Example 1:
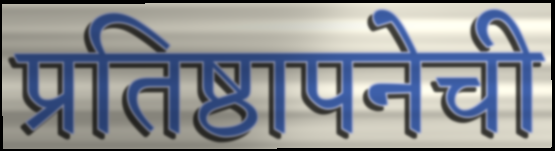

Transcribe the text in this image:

प्रतिष्ठापनेची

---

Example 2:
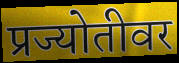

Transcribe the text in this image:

प्रज्योतीवर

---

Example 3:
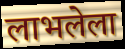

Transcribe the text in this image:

लाभलेला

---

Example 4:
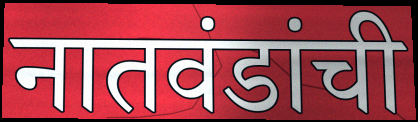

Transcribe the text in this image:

नातवंडांची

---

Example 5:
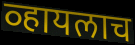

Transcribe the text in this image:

व्हायलाच